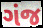
ગંજ